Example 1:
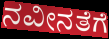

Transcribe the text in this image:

ನವೀನತೆಗೆ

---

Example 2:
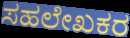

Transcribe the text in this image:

ಸಹಲೇಖಕರ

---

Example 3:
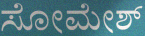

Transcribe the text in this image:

ಸೋಮೇಶ್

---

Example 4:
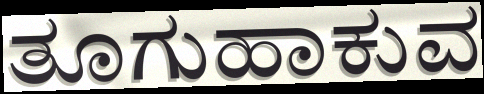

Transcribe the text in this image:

ತೂಗುಹಾಕುವ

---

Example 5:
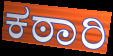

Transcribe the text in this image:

ಕಠಾರಿ